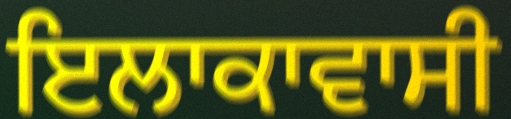
ਇਲਾਕਾਵਾਸੀ